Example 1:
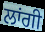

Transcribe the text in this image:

ਲਾਂਗੀ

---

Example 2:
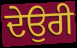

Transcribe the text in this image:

ਦੇਉਰੀ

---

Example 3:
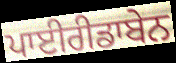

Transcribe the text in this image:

ਪਾਈਰੀਡਾਬੇਨ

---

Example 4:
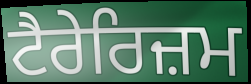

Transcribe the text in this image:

ਟੈਰੇਰਿਜ਼ਮ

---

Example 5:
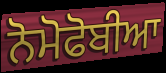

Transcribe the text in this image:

ਨੋਮੋਫੋਬੀਆ